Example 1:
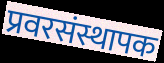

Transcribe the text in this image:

प्रवरसंस्थापक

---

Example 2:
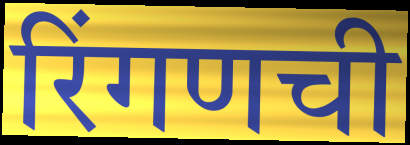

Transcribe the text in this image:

रिंगणची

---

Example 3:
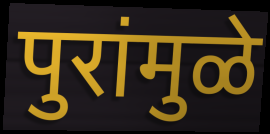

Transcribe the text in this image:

पुरांमुळे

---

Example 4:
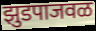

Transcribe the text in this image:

झुडपाजवळ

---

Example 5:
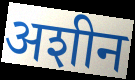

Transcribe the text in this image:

अशीन